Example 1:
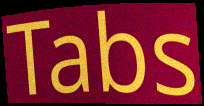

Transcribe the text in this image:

Tabs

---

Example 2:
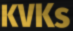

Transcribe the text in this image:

KVKs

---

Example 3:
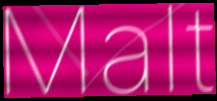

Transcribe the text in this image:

Malt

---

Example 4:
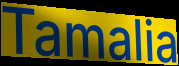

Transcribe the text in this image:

Tamalia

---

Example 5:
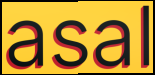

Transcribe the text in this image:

asal